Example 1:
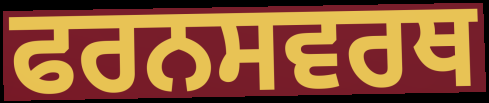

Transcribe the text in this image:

ਫਰਨਸਵਰਥ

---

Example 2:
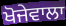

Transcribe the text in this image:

ਖੋਜੇਵਾਲਾ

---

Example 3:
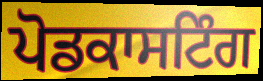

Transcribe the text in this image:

ਪੋਡਕਾਸਟਿੰਗ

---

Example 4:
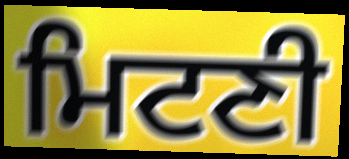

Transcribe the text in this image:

ਮਿਟਣੀ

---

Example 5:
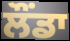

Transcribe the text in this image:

ਲੌਂਡਾ